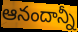
ఆనందాన్నీ